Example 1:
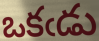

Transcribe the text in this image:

ఒకఁడు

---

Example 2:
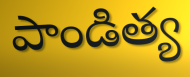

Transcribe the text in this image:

పాండిత్య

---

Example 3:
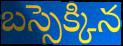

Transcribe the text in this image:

బస్సెక్కిన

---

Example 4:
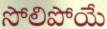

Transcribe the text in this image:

సోలిపోయే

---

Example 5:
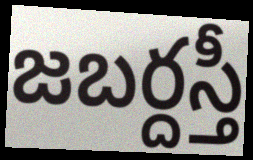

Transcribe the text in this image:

జబర్దస్తీ